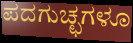
ಪದಗುಚ್ಛಗಳೂ